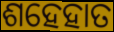
ଶହେହାତ